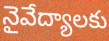
నైవేద్యాలకు